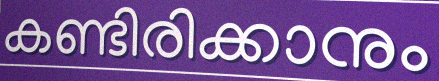
കണ്ടിരിക്കാനും